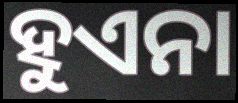
ହୁଏନା